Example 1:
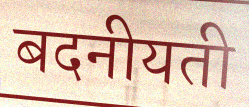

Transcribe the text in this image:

बदनीयती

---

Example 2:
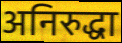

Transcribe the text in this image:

अनिरुद्धा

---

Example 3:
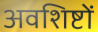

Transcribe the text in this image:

अवशिष्टों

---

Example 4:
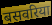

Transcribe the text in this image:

बसवरिया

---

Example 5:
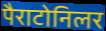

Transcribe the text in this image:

पैराटोनिलर